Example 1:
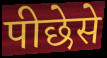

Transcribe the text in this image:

पीछेसे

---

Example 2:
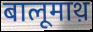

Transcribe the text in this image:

बालूमाथ़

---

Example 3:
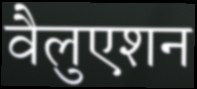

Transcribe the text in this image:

वैलुएशन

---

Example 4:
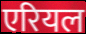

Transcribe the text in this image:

एरियल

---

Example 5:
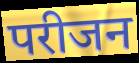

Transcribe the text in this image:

परीजन